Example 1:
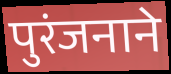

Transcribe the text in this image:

पुरंजनाने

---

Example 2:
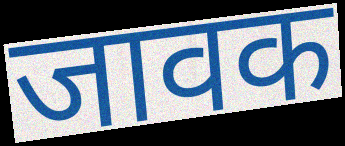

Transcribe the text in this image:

जावक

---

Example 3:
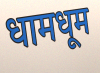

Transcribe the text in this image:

धामधूम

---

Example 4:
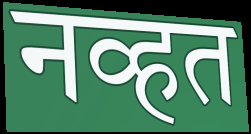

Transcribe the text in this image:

नव्हत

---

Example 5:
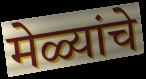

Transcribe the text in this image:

मेळ्यांचे